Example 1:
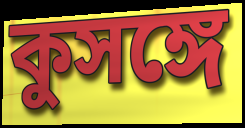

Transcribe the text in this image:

কুসঙ্গে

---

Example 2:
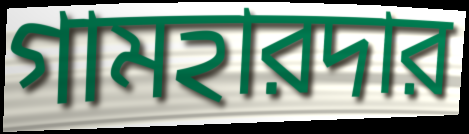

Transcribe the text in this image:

গামহারদার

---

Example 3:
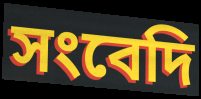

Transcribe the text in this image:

সংবেদি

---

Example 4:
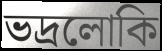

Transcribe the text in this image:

ভদ্রলোকি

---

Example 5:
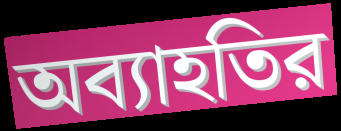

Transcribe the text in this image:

অব্যাহতির